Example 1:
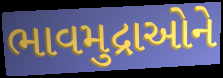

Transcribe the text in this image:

ભાવમુદ્રાઓને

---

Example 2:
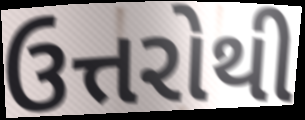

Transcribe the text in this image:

ઉત્તરોથી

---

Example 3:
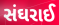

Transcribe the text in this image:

સંઘરાઈ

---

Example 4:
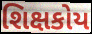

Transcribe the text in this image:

શિક્ષકોય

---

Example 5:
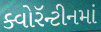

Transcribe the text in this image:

ક્વોરૅન્ટીનમાં